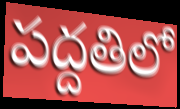
పద్దతిలో